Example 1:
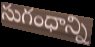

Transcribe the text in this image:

సుగంధాన్ని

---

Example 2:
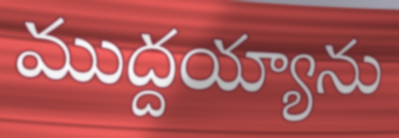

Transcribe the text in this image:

ముద్దయ్యాను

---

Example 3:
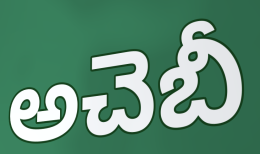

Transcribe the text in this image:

అచెబీ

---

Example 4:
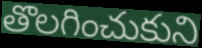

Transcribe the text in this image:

తొలగించుకుని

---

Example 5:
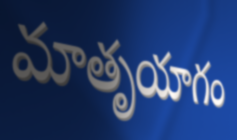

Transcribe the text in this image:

మాతృయాగం